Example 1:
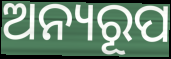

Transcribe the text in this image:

ଅନ୍ୟରୂପ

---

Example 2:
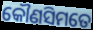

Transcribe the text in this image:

କୌଣସିମତେ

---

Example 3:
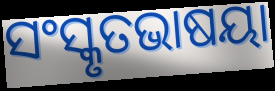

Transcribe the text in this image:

ସଂସ୍କୃତଭାଷୟା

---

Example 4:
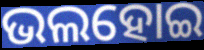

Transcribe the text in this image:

ଭଲହୋଇ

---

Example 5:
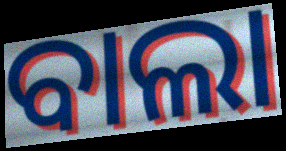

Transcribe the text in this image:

ବାଲା